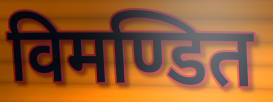
विमण्डित